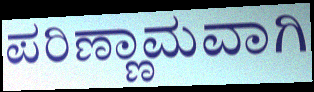
ಪರಿಣ್ಣಾಮವಾಗಿ